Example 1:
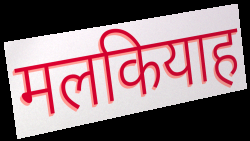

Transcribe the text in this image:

मलकियाह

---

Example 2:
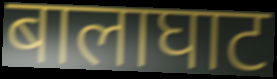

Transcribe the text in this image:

बालाघाट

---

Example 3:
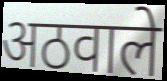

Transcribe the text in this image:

अठवाले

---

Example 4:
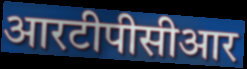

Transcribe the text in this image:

आरटीपीसीआर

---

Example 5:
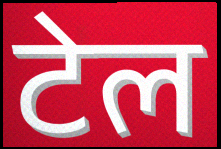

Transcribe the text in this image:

टेल